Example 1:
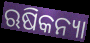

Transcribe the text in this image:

ଋଷିକନ୍ୟା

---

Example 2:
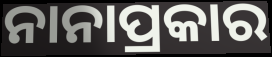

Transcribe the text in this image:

ନାନାପ୍ରକାର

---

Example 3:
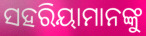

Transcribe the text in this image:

ସହରିୟାମାନଙ୍କୁ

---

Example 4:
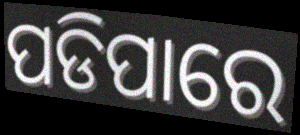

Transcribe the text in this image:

ପଡିପାରେ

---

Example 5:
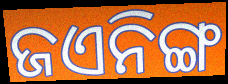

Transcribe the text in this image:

ଜଏନିଙ୍ଗ